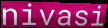
nivasi